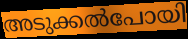
അടുക്കൽപോയി